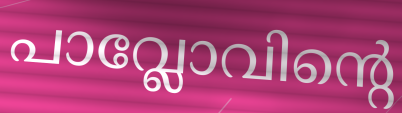
പാവ്ലോവിന്റെ